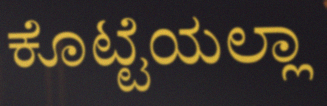
ಕೊಟ್ಟೆಯಲ್ಲಾ